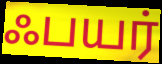
ஃபயர்